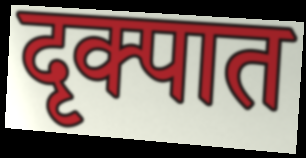
दृक्पात